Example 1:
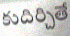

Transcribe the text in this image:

కుదిర్చితే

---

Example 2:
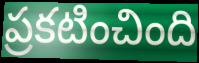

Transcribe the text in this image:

ప్రకటించింది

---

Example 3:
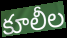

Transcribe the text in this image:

కూలీల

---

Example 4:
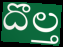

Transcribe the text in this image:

దొల్త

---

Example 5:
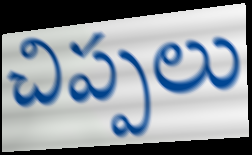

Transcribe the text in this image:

చిప్పలు